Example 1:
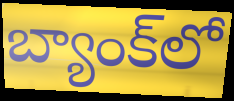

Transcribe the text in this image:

బ్యాంక్‌లో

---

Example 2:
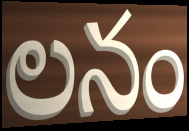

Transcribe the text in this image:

లనం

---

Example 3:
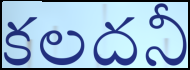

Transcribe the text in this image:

కలదనీ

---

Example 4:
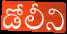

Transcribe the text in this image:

డోలీని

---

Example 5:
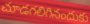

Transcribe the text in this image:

చూడగలిగినందుకు